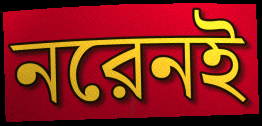
নরেনই